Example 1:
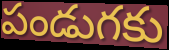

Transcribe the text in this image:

పండుగకు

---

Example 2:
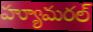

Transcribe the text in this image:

హ్యూమరల్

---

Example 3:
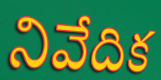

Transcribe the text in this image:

నివేదిక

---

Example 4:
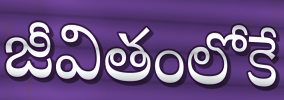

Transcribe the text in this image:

జీవితంలోకే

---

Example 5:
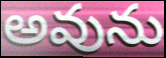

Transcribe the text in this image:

అవును